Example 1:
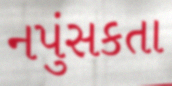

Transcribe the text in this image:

નપુંસકતા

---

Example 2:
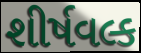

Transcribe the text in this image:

શીર્ષવલ્ક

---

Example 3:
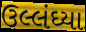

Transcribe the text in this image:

ઉલ્લંઘ્યા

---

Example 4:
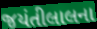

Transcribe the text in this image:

જયંતીલાલના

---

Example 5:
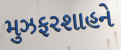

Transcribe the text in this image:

મુઝફરશાહને